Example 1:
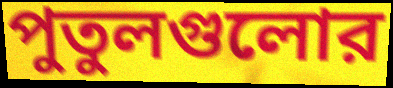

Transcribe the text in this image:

পুতুলগুলোর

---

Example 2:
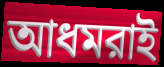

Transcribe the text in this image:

আধমরাই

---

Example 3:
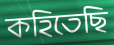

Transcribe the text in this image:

কহিতেছি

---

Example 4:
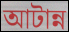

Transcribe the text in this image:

আটান্ন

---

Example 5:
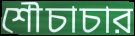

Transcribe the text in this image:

শৌচাচার